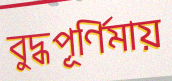
বুদ্ধপূর্ণিমায়